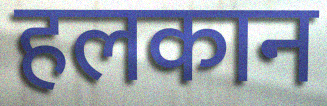
हलकान